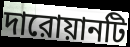
দারোয়ানটি